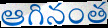
ఆగినంత